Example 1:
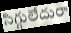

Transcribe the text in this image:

సిగ్గులేదురా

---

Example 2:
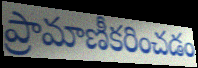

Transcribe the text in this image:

ప్రామాణీకరించడం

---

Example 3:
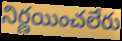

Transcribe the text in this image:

నిర్ణయించలేరు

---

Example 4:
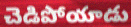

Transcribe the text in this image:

చెడిపోయాడు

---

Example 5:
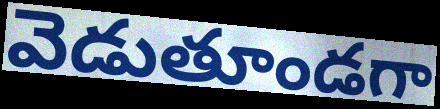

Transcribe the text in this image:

వెడుతూండగా